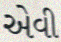
એવી